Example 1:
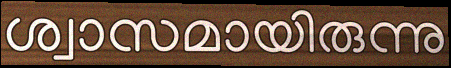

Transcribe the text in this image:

ശ്വാസമായിരുന്നു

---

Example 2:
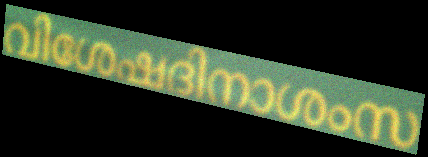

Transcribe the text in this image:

വിശേഷദിനാശംസ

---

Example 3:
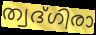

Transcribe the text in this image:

ത്വദ്ഗിരാ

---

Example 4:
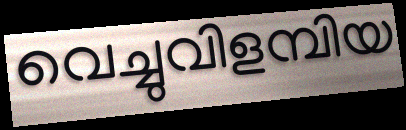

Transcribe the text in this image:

വെച്ചുവിളമ്പിയ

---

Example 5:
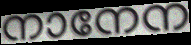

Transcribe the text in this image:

നാനേന